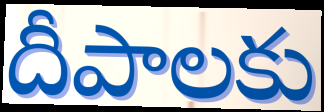
దీపాలకు